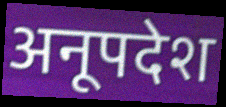
अनूपदेश